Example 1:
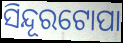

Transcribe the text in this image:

ସିନ୍ଦୂରଟୋପା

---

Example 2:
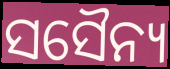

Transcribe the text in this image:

ସସୈନ୍ୟ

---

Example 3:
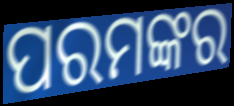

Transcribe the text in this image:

ପରମଙ୍କର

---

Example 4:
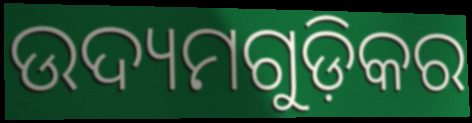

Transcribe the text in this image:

ଉଦ୍ୟମଗୁଡ଼ିକର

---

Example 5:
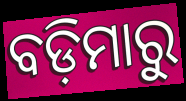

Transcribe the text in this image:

ବଡ଼ିମାରୁ